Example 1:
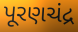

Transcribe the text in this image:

પૂરણચંદ્ર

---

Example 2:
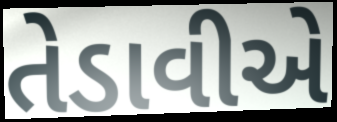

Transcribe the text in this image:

તેડાવીએ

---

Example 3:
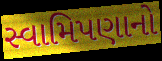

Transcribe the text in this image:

સ્વામિપણાનો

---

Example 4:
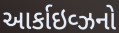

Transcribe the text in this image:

આર્કાઇવ્ઝનો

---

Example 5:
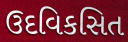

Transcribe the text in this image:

ઉદવિકસિત